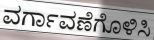
ವರ್ಗಾವಣೆಗೊಳಿಸಿ